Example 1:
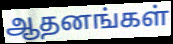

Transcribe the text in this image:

ஆதனங்கள்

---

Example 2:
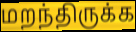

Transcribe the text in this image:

மறந்திருக்க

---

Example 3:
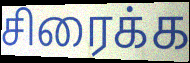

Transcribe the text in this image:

சிரைக்க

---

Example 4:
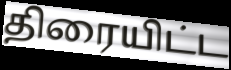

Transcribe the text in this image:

திரையிட்ட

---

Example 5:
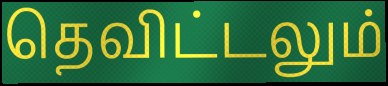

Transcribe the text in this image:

தெவிட்டலும்